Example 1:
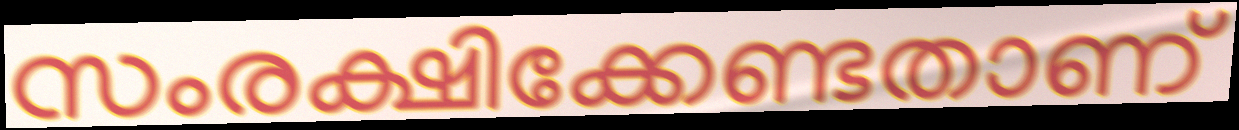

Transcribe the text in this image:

സംരക്ഷിക്കേണ്ടതാണ്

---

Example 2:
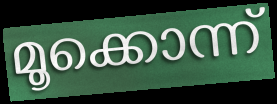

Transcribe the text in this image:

മൂക്കൊന്ന്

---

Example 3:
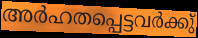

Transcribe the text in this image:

അർഹതപ്പെട്ടവർക്കു്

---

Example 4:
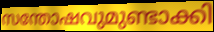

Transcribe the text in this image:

സന്തോഷവുമുണ്ടാക്കി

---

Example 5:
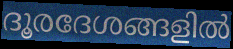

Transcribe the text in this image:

ദൂരദേശങ്ങളിൽ